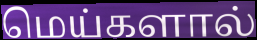
மெய்களால்